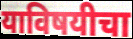
याविषयीचा